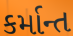
કર્માન્ત